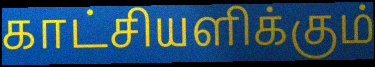
காட்சியளிக்கும்